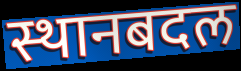
स्थानबदल